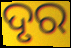
ଦୃର